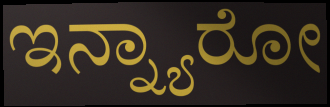
ಇನ್ನ್ಯಾರೋ